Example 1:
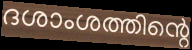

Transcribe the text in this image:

ദശാംശത്തിന്റെ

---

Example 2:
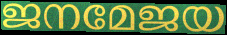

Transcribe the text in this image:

ജനമേജയ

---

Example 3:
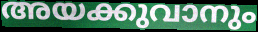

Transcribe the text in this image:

അയക്കുവാനും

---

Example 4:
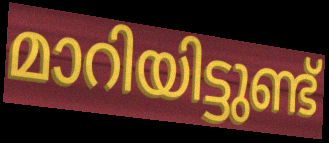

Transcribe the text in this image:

മാറിയിട്ടുണ്ട്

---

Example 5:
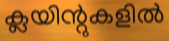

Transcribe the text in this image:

ക്ലയിന്റുകളിൽ